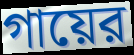
গায়ের